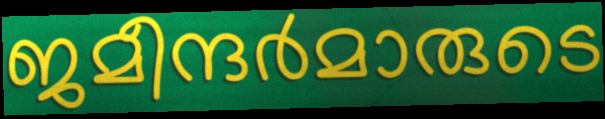
ജമീന്ദർമാരുടെ